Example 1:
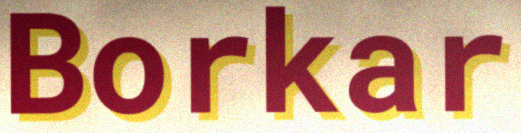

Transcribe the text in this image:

Borkar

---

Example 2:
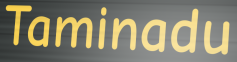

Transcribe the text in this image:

Taminadu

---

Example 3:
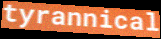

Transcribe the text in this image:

tyrannical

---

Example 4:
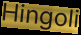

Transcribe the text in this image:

Hingoli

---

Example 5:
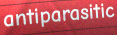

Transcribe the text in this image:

antiparasitic